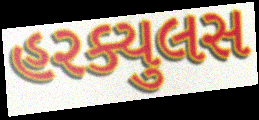
હરક્યુલસ